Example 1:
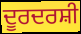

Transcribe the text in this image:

ਦੂਰਦਰਸ਼ੀ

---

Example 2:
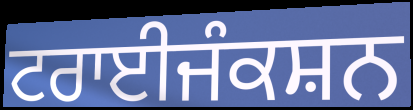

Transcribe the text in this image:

ਟਰਾਈਜੰਕਸ਼ਨ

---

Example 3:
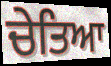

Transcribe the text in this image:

ਚੇਤਿਆ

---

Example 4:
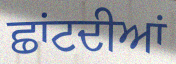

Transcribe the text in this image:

ਛਾਂਟਦੀਆਂ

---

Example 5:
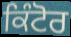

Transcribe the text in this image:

ਕਿੰਟੋਰ